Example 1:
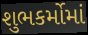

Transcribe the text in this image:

શુભકર્મોમાં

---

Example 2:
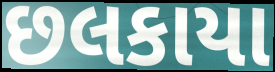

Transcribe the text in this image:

છલકાયા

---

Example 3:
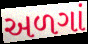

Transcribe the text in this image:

અળગાં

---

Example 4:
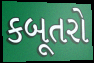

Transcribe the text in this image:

કબૂતરો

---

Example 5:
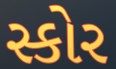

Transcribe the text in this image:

સ્કોર